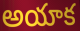
అయాక